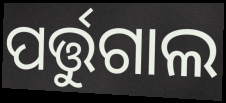
ପର୍ତ୍ତୁଗାଲ